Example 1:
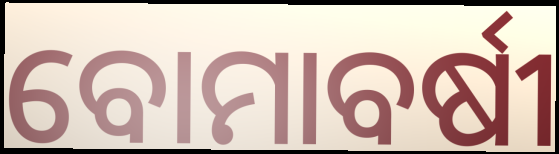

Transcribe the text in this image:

ବୋମାବର୍ଷୀ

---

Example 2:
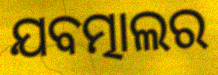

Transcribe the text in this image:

ଯବତ୍ମାଲର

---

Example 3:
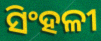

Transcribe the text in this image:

ସିଂହଳୀ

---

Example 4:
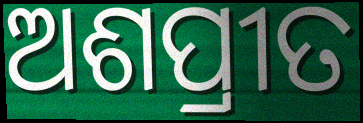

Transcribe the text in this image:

ଅଶପ୍ରୀତ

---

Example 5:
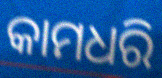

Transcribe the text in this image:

କାମଧରି